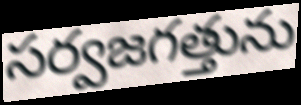
సర్వజగత్తును